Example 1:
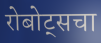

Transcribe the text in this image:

रोबोट्सचा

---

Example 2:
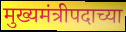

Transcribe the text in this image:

मुख्यमंत्रीपदाच्या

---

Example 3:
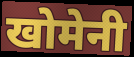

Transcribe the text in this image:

खोमेनी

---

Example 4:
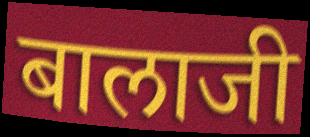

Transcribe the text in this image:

बालाजी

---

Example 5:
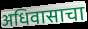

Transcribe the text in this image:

अधिवासाचा